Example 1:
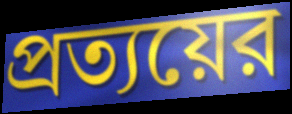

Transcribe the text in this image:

প্রত্যয়ের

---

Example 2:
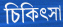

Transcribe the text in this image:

চিকিৎসা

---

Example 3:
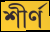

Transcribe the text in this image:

শীর্ণ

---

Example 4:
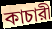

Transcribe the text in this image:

কাচারী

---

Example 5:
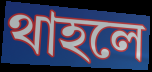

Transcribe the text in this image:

থাহলে